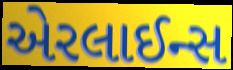
એરલાઈન્સ